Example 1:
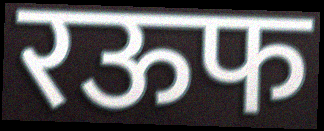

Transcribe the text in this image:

रऊफ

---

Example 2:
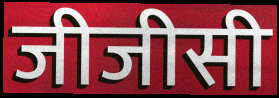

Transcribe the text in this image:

जीजीसी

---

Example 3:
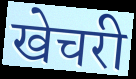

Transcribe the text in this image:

खेचरी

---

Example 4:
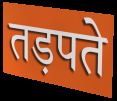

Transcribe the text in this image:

तड़पते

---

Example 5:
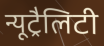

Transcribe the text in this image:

न्यूट्रैलिटी